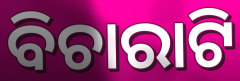
ବିଚାରାଟି